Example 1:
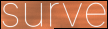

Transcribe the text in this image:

surve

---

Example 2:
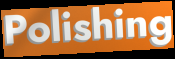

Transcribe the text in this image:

Polishing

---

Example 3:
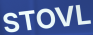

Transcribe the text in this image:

STOVL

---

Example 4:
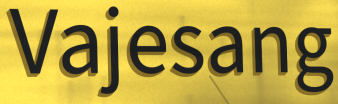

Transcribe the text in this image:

Vajesang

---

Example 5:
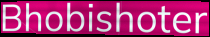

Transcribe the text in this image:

Bhobishoter